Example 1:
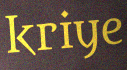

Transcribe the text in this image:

kriye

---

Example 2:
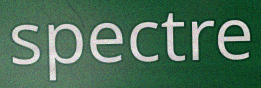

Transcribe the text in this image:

spectre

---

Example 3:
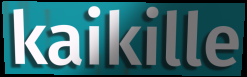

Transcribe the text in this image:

kaikille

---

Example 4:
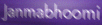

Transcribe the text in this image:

Janmabhoomi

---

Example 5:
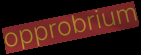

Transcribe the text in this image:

opprobrium